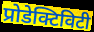
प्रोडेक्टिविटी